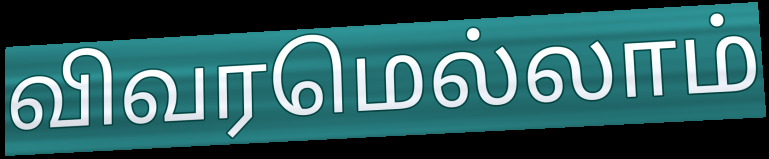
விவரமெல்லாம்